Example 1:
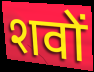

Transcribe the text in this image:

शवों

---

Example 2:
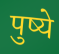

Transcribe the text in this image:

पुष्ये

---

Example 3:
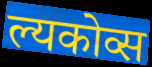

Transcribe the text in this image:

ल्यकोव्स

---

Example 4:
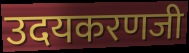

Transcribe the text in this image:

उदयकरणजी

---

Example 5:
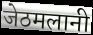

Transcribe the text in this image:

जेठमलानी